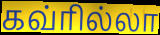
கவ்ரில்லா